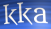
kka